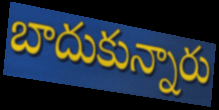
బాదుకున్నారు